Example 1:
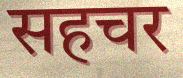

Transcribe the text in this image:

सहचर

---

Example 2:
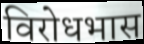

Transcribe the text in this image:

विरोधभास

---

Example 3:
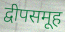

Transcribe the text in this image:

द्वीपसमूह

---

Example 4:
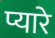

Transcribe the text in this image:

प्यारे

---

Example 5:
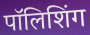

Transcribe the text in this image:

पॉलिशिंग